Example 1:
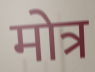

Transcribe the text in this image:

मोत्र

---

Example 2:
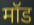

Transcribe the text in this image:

मॉड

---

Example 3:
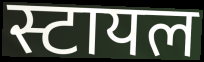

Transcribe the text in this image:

स्टायल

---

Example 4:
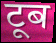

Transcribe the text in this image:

टूब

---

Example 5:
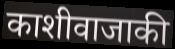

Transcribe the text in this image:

काशीवाजाकी